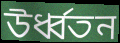
উর্ধ্বতন